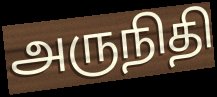
அருநிதி